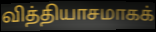
வித்தியாசமாகக்